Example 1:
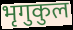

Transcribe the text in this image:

भृगुकुल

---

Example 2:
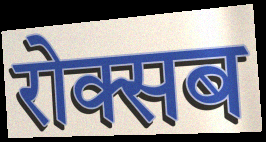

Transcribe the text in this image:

रोक्सब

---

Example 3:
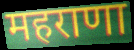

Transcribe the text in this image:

महराणा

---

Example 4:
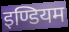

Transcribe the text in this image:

इण्डियम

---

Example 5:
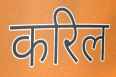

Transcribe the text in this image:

करिल